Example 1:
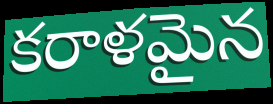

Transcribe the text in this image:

కరాళమైన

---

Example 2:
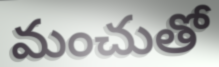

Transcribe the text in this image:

మంచుతో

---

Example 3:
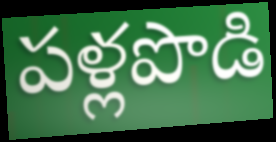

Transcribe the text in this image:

పళ్లపొడి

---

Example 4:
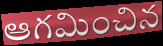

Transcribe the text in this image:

ఆగమించిన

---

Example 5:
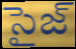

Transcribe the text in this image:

సైజ్